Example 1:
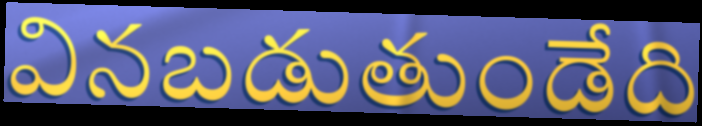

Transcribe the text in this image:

వినబడుతుండేది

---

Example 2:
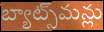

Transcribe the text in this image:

బ్యాట్స్‌మన్లు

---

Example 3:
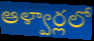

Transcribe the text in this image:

ఆళ్వార్లలో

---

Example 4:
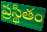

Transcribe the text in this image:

ప్రస్థితం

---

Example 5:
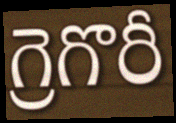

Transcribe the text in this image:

గ్రెగొరీ